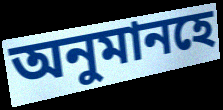
অনুমানহে